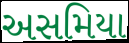
અસમિયા